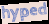
hyped